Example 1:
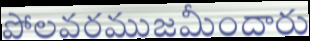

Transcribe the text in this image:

పోలవరముజమీందారు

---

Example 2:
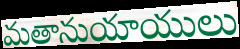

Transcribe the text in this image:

మతానుయాయులు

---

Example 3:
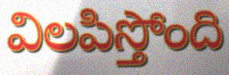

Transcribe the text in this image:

విలపిస్తోంది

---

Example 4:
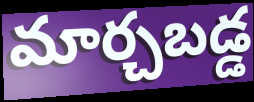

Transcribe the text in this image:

మార్చబడ్డ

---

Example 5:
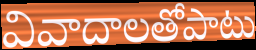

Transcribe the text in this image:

వివాదాలతోపాటు